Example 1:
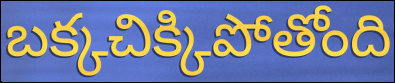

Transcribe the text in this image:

బక్కచిక్కిపోతోంది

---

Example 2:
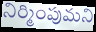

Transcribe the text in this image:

నిర్మింపుమని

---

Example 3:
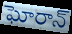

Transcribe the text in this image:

ఘోరాన్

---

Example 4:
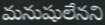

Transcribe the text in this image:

మనుషులేనని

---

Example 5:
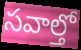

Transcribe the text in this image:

సవాల్తో